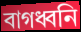
বাগধ্বনি